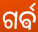
ଗର୍ଵ